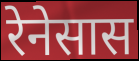
रेनेसास